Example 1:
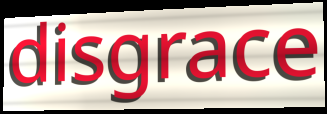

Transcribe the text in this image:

disgrace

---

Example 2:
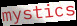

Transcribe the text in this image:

mystics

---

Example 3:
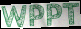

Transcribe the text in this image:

WPPT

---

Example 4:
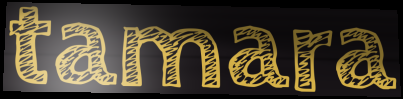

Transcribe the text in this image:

tamara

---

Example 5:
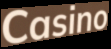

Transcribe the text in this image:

Casino